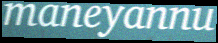
maneyannu